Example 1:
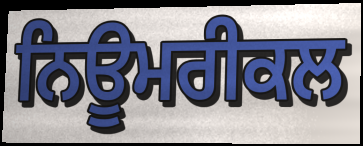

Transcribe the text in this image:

ਨਿਊਮਰੀਕਲ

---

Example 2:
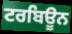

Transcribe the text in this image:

ਟਰਬਿਊਨ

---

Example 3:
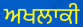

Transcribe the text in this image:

ਅਖਲਾਕੀ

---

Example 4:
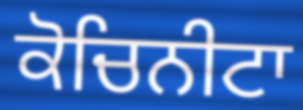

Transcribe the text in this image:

ਕੋਚਿਨੀਟਾ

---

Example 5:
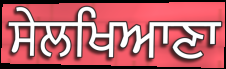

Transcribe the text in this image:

ਸੇਲਖਿਆਣਾ